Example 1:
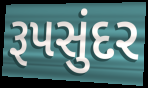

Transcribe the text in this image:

રૂપસુંદર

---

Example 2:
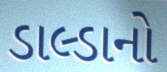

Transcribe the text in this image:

ડાલ્ડાનો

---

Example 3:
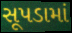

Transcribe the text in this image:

સૂપડામાં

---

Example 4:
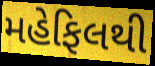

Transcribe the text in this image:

મહેફિલથી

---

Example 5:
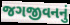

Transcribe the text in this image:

જગજીવનનું